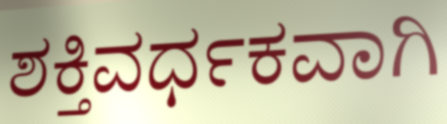
ಶಕ್ತಿವರ್ಧಕವಾಗಿ